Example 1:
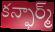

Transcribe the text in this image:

కన్ఫార్మ్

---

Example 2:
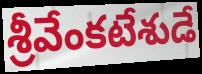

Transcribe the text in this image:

శ్రీవేంకటేశుడే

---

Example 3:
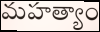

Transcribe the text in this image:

మహత్యాం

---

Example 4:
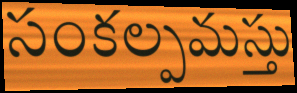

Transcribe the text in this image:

సంకల్పమస్తు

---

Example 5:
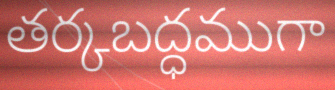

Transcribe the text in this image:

తర్కబద్ధముగా